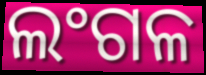
ଲଂଗଳ